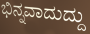
ಭಿನ್ನವಾದುದ್ದು